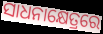
ସାଧନାକ୍ଷେତ୍ରରେ